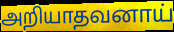
அறியாதவனாய்